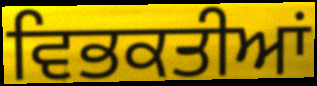
ਵਿਭਕਤੀਆਂ